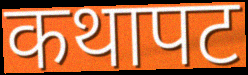
कथापट